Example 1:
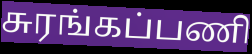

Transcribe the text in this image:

சுரங்கப்பணி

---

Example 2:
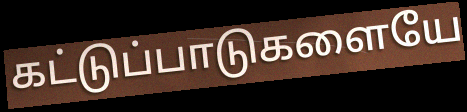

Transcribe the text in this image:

கட்டுப்பாடுகளையே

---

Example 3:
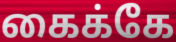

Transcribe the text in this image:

கைக்கே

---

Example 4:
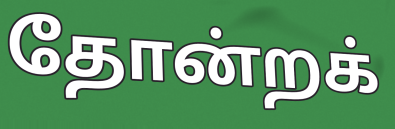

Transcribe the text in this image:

தோன்றக்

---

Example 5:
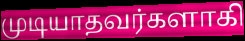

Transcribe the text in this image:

முடியாதவர்களாகி